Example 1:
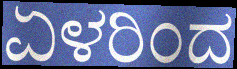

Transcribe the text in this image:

ಏಳರಿಂದ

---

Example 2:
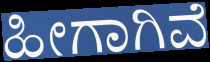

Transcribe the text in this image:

ಹೀಗಾಗಿವೆ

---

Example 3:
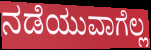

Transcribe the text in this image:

ನಡೆಯುವಾಗೆಲ್ಲ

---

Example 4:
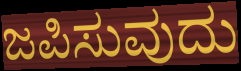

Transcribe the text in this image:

ಜಪಿಸುವುದು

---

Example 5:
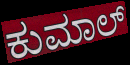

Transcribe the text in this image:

ಕುಮಾಲ್